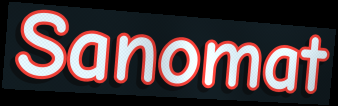
Sanomat